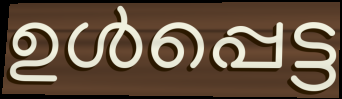
ഉൾപ്പെട്ട